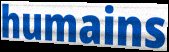
humains